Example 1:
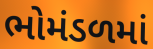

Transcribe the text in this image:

ભોમંડળમાં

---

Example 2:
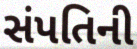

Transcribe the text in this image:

સંપતિની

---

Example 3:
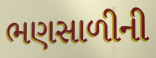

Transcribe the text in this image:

ભણસાળીની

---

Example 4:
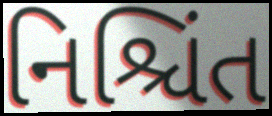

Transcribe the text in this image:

નિશ્ચિંત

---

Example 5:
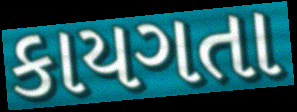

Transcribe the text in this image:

કાયગતા